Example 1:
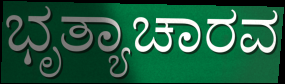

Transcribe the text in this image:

ಭೃತ್ಯಾಚಾರವ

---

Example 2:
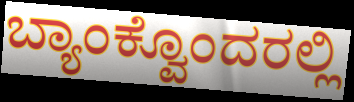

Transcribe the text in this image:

ಬ್ಯಾಂಕ್ವೊಂದರಲ್ಲಿ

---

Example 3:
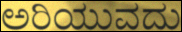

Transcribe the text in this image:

ಅರಿಯುವದು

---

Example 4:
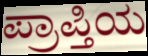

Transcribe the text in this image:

ಪ್ರಾಪ್ತಿಯ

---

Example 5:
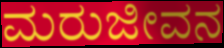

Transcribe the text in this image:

ಮರುಜೀವನ